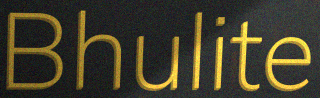
Bhulite